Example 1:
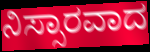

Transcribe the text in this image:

ನಿಸ್ಸಾರವಾದ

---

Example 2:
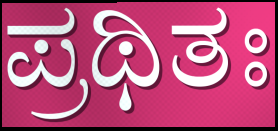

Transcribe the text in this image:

ಪ್ರಥಿತಃ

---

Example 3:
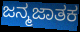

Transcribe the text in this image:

ಜನ್ಮಜಾತಕ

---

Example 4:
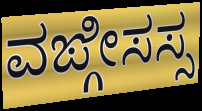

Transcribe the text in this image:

ವಙ್ಗೀಸಸ್ಸ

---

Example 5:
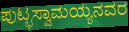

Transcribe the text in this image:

ಪುಟ್ಟಸ್ವಾಮಯ್ಯನವರ